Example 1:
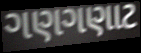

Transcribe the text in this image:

ગણગણાટ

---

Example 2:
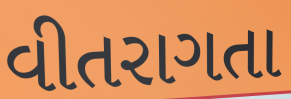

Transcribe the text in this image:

વીતરાગતા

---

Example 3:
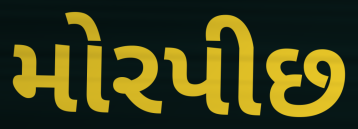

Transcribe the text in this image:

મોરપીછ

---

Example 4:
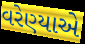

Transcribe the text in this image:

વરેણ્યાએ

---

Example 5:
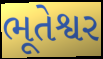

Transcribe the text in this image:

ભૂતેશ્વર